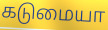
கடுமையா